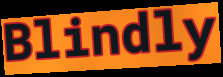
Blindly